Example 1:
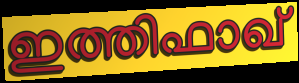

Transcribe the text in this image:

ഇത്തിഫാഖ്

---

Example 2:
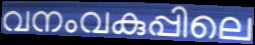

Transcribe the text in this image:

വനംവകുപ്പിലെ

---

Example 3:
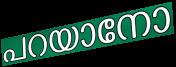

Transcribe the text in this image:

പറയാനോ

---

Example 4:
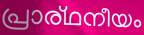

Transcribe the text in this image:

പ്രാര്ഥനീയം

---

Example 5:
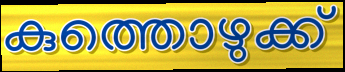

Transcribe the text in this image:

കുത്തൊഴുക്ക്